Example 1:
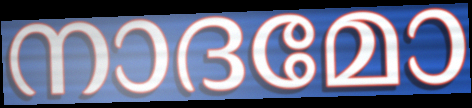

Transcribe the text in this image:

നാദമോ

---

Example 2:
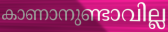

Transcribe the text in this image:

കാണാനുണ്ടാവില്ല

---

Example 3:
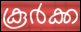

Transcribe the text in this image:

കൂർക്ക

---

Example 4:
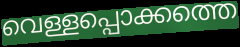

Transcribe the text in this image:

വെള്ളപ്പൊക്കത്തെ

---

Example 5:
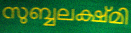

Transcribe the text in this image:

സുബ്ബലക്ഷ്മി